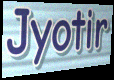
Jyotir